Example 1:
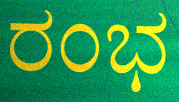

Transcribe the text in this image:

ರಂಭ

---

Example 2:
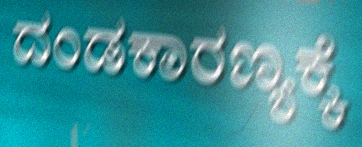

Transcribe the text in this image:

ದಂಡಕಾರಣ್ಯಕ್ಕೆ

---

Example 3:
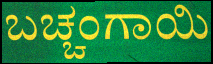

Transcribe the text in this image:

ಬಚ್ಚಂಗಾಯಿ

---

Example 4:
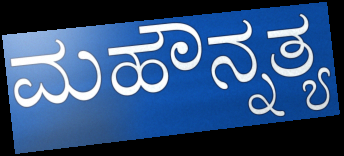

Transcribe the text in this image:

ಮಹೌನ್ನತ್ಯ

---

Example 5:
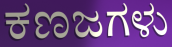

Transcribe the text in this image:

ಕಣಜಗಳು